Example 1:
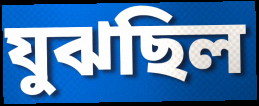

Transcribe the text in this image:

যুঝছিল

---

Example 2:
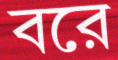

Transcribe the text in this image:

বরে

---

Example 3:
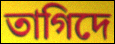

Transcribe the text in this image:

তাগিদে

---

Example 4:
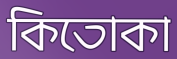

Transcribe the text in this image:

কিতোকা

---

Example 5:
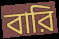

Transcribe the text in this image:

বারি